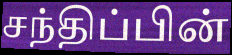
சந்திப்பின்